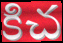
కిచ